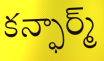
కన్ఫార్మ్